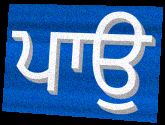
ਪਾਉ